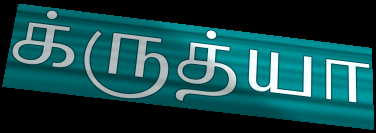
க்ருத்யா